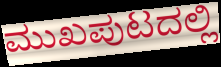
ಮುಖಪುಟದಲ್ಲಿ